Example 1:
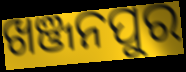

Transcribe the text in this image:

ଖଞ୍ଜନପୁର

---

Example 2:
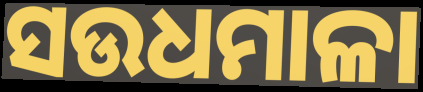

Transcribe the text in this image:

ସଉଧମାଳା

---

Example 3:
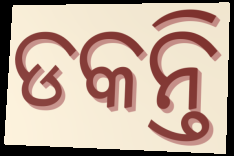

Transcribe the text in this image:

ଡକନ୍ତି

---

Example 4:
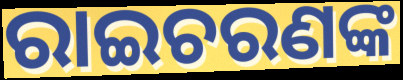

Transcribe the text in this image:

ରାଇଚରଣଙ୍କ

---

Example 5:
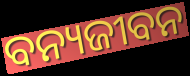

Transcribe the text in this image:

ବନ୍ୟଜୀବନ